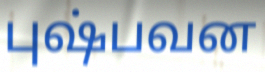
புஷ்பவன